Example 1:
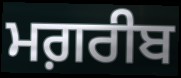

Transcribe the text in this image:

ਮਗ਼ਰੀਬ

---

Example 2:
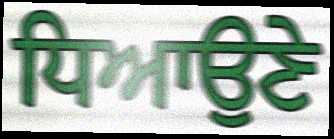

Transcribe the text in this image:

ਧਿਆਉਣੇ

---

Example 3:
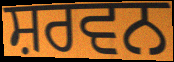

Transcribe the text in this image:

ਸ਼ਰਵਨ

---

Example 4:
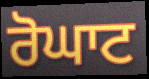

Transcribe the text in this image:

ਰੋਘਾਟ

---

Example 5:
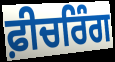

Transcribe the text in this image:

ਫ਼ੀਚਰਿੰਗ